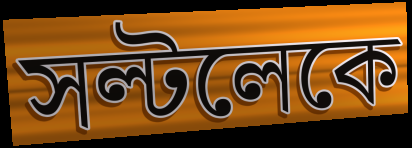
সল্টলেকে